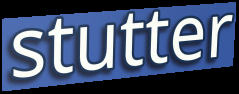
stutter